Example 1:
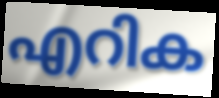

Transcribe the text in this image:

എറിക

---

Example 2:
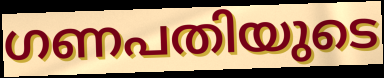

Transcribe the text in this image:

ഗണപതിയുടെ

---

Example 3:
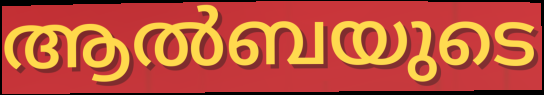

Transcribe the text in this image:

ആൽബയുടെ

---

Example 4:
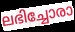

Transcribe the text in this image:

ലഭിച്ചോരാ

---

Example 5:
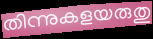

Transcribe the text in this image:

തിന്നുകളയരുതു